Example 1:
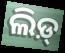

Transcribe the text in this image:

ଲିଡ଼୍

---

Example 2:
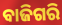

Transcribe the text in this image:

ବାଜିଗରି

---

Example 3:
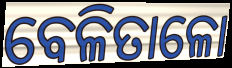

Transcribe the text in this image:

ବେଳିତାଳୋ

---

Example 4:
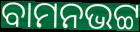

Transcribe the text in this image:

ବାମନଭଟ୍ଟ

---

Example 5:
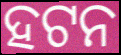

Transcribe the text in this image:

ହଟନ